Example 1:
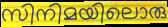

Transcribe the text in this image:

സിനിമയിലൊരു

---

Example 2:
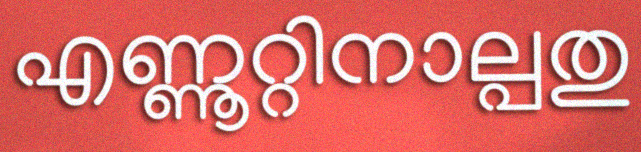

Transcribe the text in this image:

എണ്ണൂറ്റിനാല്പതു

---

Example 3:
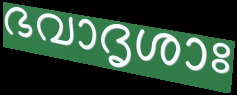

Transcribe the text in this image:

ഭവാദൃശാഃ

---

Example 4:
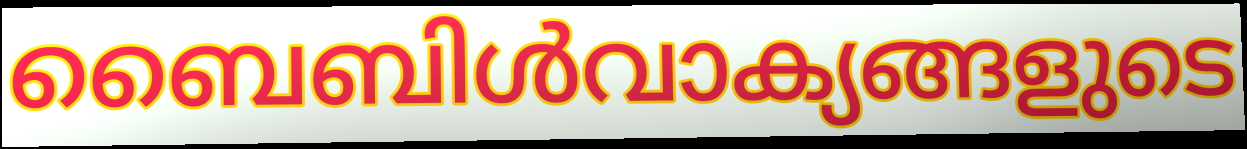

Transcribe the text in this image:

ബൈബിൾവാക്യങ്ങളുടെ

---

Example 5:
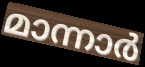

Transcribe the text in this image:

മാന്നാർ